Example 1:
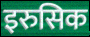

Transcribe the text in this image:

इरुसिक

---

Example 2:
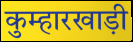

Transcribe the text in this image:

कुम्हारखाड़ी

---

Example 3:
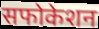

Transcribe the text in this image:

सफोकेशन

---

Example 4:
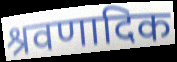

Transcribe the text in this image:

श्रवणादिक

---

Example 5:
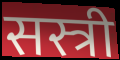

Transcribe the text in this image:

सस्त्री